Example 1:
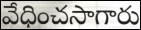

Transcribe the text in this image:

వేధించసాగారు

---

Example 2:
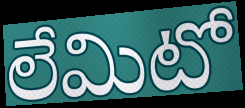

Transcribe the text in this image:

లేమిటో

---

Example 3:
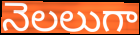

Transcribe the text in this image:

నెలలుగా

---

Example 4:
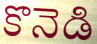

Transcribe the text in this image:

కొనెడి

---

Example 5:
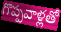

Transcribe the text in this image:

గొప్పవాళ్లతో